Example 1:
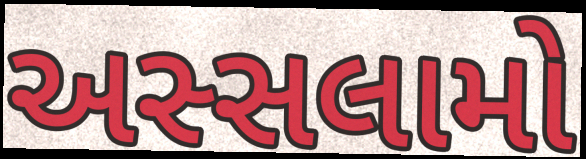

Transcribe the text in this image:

અસ્સલામો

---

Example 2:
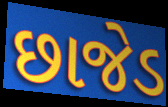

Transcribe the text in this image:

છાજેડ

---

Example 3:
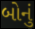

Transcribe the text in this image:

બોનું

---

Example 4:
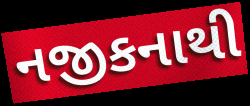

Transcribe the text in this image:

નજીકનાથી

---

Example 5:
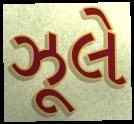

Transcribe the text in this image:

ઝૂલે